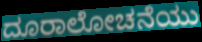
ದೂರಾಲೋಚನೆಯು